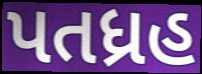
પતધ્રહ